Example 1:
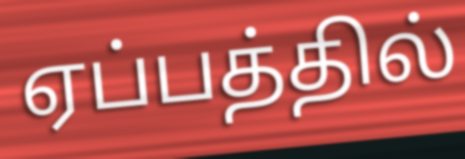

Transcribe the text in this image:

ஏப்பத்தில்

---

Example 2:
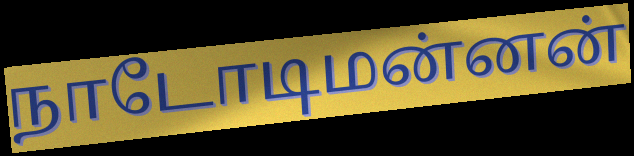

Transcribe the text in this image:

நாடோடிமன்னன்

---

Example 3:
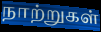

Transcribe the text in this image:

நாற்றுகள்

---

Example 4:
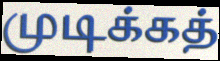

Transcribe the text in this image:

முடிக்கத்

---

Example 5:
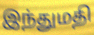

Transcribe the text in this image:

இந்துமதி